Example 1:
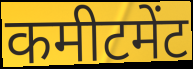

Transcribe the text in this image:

कमीटमेंट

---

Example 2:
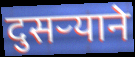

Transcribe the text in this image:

दुसऱ्याने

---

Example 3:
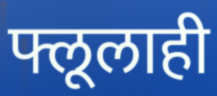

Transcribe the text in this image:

फ्लूलाही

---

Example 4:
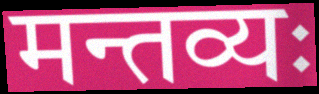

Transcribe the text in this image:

मन्तव्यः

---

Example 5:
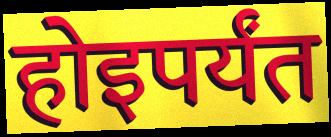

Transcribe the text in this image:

होइपर्यंत